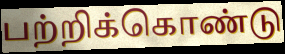
பற்றிக்கொண்டு